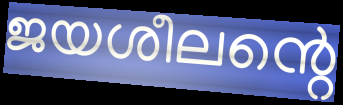
ജയശീലന്റെ